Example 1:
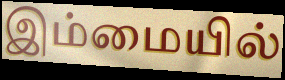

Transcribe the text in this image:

இம்மையில்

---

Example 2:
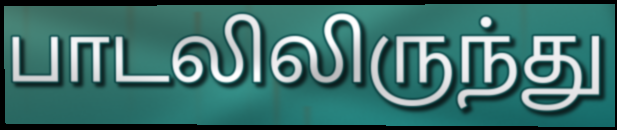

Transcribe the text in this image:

பாடலிலிருந்து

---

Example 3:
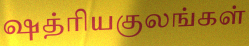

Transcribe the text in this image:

ஷத்ரியகுலங்கள்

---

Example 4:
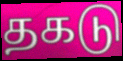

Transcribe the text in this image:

தகடு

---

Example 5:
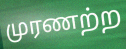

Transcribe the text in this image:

முரணற்ற